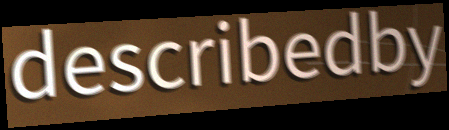
describedby